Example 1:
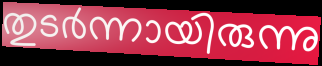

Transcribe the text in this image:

തുടർന്നായിരുന്നു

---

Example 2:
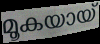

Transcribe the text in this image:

മൂകയായ്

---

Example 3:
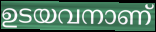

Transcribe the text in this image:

ഉടയവനാണ്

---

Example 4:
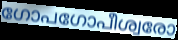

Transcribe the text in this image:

ഗോപഗോപീശ്വരോ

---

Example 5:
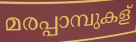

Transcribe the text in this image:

മരപ്പാമ്പുകള്